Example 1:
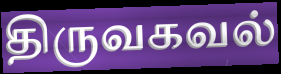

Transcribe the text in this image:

திருவகவல்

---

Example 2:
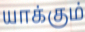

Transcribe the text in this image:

யாக்கும்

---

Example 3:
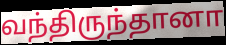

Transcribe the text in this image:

வந்திருந்தானா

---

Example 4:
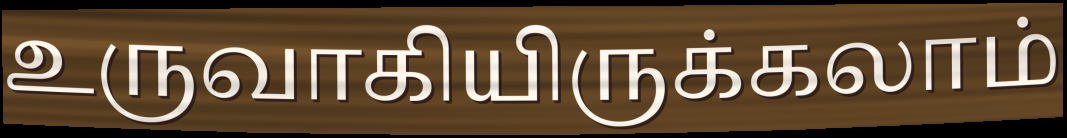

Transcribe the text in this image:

உருவாகியிருக்கலாம்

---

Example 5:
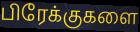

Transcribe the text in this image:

பிரேக்குகளை